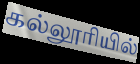
கல்லூரியில்